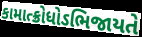
કામાત્ક્રોધોઽભિજાયતે